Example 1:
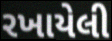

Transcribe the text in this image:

રખાયેલી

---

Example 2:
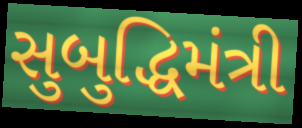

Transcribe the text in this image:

સુબુદ્ધિમંત્રી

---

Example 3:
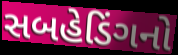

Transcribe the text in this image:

સબહેડિંગનો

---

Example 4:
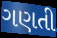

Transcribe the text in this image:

ગણતી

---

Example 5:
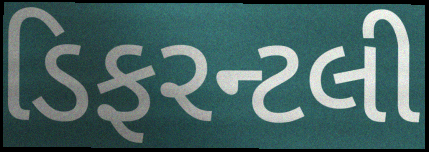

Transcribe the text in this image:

ડિફરન્ટલી